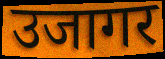
उजागर